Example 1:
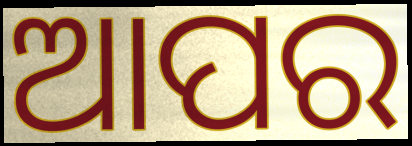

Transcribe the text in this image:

ଆପର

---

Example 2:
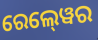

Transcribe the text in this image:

ରେଲ୍‍ୱେର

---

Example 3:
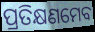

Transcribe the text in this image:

ପ୍ରତିକ୍ଷଣମେବ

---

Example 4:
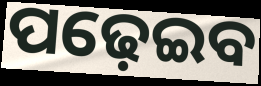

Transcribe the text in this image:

ପଢ଼େଇବ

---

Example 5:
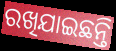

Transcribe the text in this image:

ରଖିଯାଇଛନ୍ତି